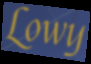
Lowy